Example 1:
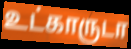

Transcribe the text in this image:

உட்காருடா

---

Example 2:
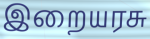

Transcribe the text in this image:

இறையரசு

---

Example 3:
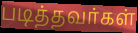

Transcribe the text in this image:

படித்தவர்கள்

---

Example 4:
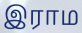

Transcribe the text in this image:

இராம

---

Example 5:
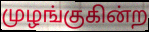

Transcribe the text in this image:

முழங்குகின்ற